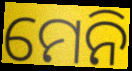
ମେନି